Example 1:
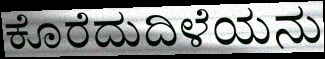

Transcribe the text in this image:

ಕೊರೆದುದಿಳೆಯನು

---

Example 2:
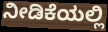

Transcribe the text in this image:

ನೀಡಿಕೆಯಲ್ಲಿ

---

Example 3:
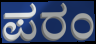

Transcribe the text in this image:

ಪರಂ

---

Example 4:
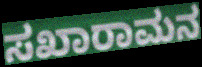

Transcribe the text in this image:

ಸಖಾರಾಮನ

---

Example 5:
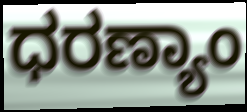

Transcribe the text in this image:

ಧರಣ್ಯಾಂ